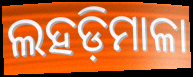
ଲହଡ଼ିମାଳା